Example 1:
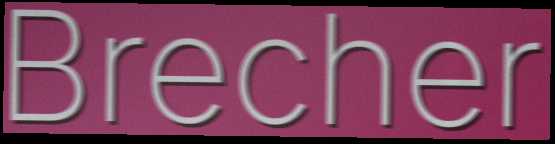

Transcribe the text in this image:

Brecher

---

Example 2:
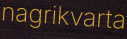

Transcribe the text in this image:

nagrikvarta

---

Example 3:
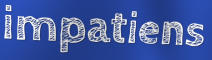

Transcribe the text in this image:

impatiens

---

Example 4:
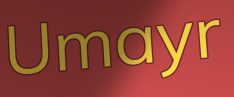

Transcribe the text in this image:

Umayr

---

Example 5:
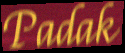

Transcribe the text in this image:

Padak